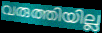
വരുത്തിയില്ല